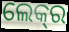
ଲେକ୍‍ର